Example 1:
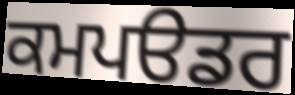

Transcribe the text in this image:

ਕਮਪੳਡਰ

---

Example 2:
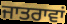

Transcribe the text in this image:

ਜਾਤਰਾਵਾਂ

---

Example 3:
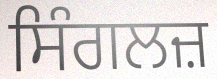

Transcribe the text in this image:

ਸਿੰਗਲਜ਼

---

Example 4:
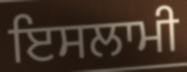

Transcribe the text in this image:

ਇਸਲਾਮੀ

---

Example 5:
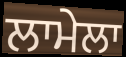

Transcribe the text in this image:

ਲਾਮੇਲਾ